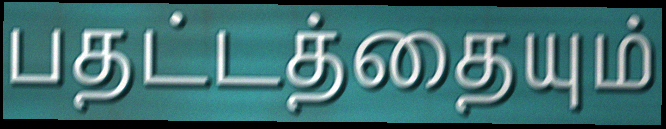
பதட்டத்தையும்